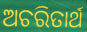
ଅଚରିତାର୍ଥ